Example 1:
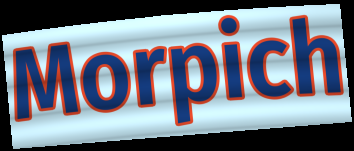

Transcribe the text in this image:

Morpich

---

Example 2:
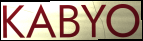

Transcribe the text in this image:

KABYO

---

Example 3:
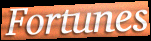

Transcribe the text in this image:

Fortunes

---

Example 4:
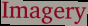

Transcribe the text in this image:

Imagery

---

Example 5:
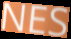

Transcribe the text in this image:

NES